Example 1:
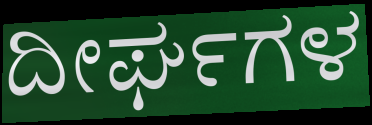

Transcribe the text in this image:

ದೀರ್ಘಗಳ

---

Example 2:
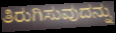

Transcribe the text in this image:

ತಿರುಗಿಸುವುದನ್ನು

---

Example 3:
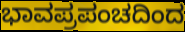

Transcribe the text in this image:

ಭಾವಪ್ರಪಂಚದಿಂದ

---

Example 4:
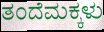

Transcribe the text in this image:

ತಂದೆಮಕ್ಕಳು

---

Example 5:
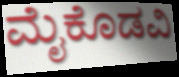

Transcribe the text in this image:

ಮೈಕೊಡವಿ